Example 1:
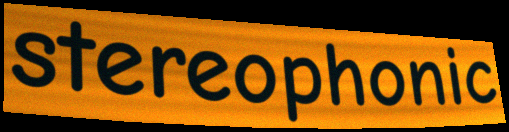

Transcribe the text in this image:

stereophonic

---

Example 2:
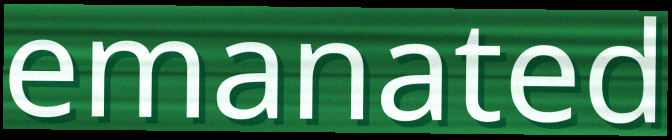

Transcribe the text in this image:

emanated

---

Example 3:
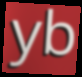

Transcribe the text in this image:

yb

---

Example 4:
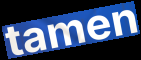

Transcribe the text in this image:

tamen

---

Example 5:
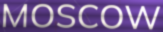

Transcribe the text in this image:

MOSCOW